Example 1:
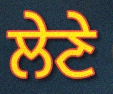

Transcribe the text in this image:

ਲੇਣੇ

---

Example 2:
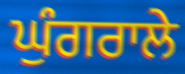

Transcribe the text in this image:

ਘੁੰਗਰਾਲੇ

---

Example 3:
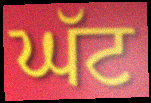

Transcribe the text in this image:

ਘੱਟ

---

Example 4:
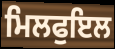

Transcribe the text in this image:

ਮਿਲਫੁਇਲ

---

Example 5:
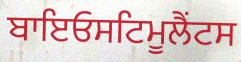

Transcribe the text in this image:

ਬਾਇਓਸਟਿਮੂਲੈਂਟਸ